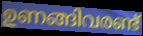
ഉണങ്ങിവരണ്ട്